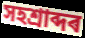
সহশ্ৰাব্দৰ